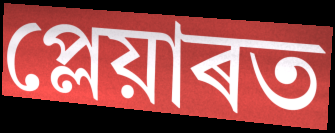
প্লেয়াৰত